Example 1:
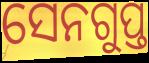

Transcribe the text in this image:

ସେନଗୁପ୍ତ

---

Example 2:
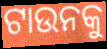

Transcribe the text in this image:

ଟାଉନକୁ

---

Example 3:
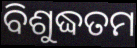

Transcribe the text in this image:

ବିଶୁଦ୍ଧତମ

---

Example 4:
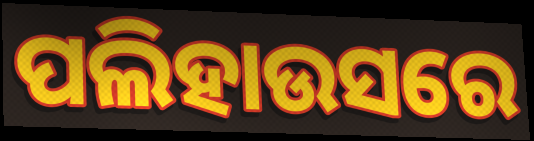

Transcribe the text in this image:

ପଲିହାଉସରେ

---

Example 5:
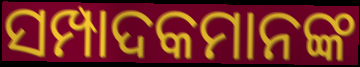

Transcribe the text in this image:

ସମ୍ପାଦକମାନଙ୍କ